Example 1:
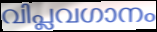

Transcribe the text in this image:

വിപ്ലവഗാനം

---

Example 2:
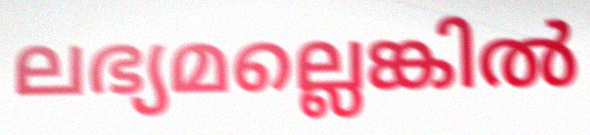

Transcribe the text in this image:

ലഭ്യമല്ലെങ്കിൽ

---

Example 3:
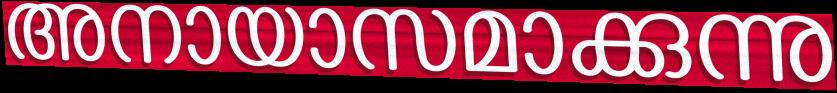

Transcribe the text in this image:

അനായാസമാക്കുന്നു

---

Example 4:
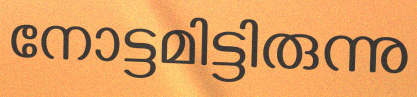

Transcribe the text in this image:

നോട്ടമിട്ടിരുന്നു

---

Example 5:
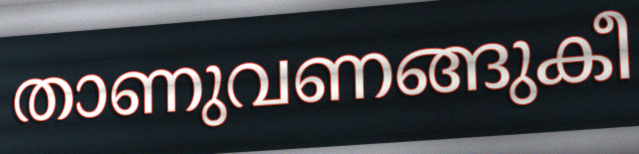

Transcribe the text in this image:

താണുവണങ്ങുകീ